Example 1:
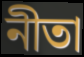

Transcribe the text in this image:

নীতা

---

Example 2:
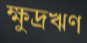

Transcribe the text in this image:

ক্ষুদ্রঋণ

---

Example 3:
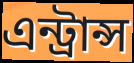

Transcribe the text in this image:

এন্ট্রান্স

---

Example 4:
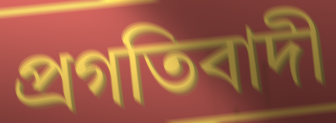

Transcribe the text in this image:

প্রগতিবাদী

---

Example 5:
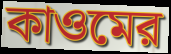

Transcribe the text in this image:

কাওমের